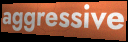
aggressive